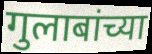
गुलाबांच्या